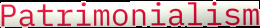
Patrimonialism